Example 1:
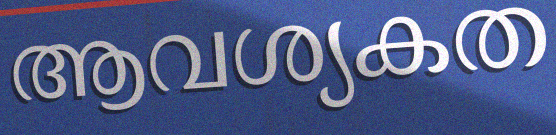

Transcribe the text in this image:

ആവശ്യകത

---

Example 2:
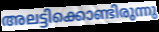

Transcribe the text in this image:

അലട്ടിക്കൊണ്ടിരുന്നു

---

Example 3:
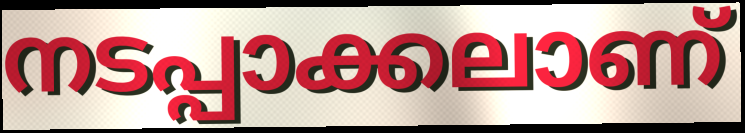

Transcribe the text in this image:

നടപ്പാക്കലാണ്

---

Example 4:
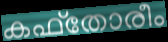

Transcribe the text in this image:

കഫ്തോരീം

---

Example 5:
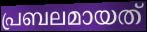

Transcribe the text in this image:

പ്രബലമായത്